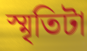
স্মৃতিটা